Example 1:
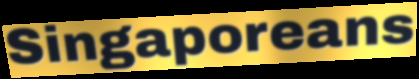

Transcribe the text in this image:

Singaporeans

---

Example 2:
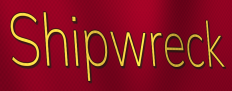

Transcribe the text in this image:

Shipwreck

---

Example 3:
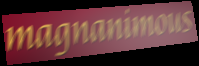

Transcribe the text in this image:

magnanimous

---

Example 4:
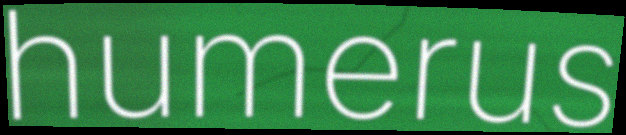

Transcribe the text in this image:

humerus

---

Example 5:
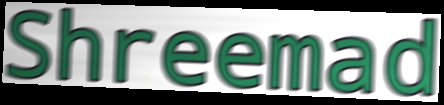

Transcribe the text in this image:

Shreemad